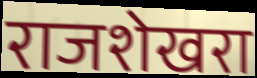
राजशेखरा